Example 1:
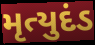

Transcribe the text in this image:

મૃત્યુદંડ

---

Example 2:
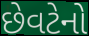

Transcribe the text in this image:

છેવટેનો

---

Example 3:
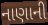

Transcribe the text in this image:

નાણાની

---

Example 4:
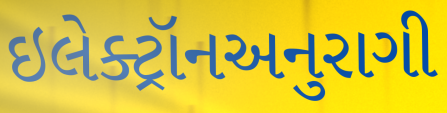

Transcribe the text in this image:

ઇલેક્ટ્રૉનઅનુરાગી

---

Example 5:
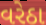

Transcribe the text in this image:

વરેઠા